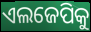
ଏଲଜେପିକୁ